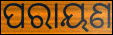
ପରାୟଣ